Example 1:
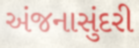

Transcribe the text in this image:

અંજનાસુંદરી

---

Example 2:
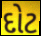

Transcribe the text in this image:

દોટ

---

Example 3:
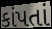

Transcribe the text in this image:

કાંપતાં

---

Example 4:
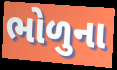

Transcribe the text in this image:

ભોળુના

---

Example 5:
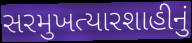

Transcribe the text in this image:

સરમુખત્યારશાહીનું